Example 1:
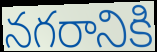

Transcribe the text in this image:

నగరానికి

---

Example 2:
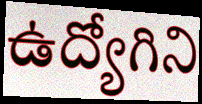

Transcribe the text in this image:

ఉద్యోగిని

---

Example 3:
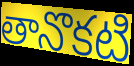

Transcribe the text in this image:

తానొకటి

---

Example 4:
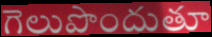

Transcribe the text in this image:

గెలుపొందుతూ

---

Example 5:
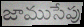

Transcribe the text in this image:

జాముసేపు